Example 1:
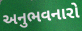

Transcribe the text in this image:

અનુભવનારો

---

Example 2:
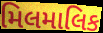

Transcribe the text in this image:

મિલમાલિક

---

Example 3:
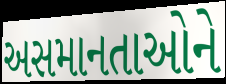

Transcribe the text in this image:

અસમાનતાઓને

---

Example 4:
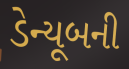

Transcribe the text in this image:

ડેન્યૂબની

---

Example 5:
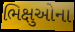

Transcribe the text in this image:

ભિક્ષુઓના